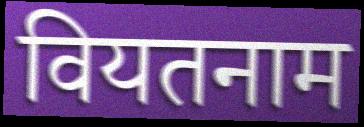
वियतनाम